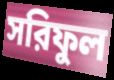
সরিফুল